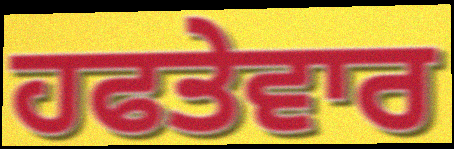
ਹਫਤੇਵਾਰ